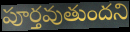
పూర్తవుతుందని